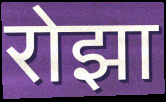
रोझा